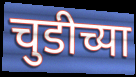
चुडीच्या